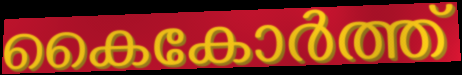
കൈകോർത്ത്